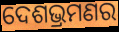
ଦେଶଭ୍ରମଣର